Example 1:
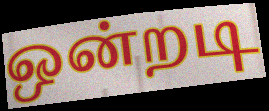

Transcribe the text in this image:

ஒன்றடி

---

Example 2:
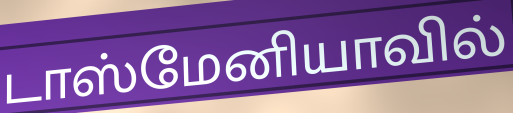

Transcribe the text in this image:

டாஸ்மேனியாவில்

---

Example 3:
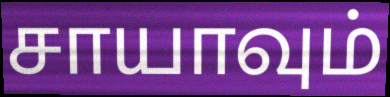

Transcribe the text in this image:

சாயாவும்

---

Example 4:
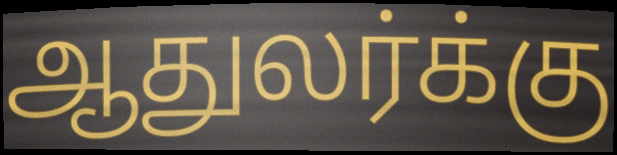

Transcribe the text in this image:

ஆதுலர்க்கு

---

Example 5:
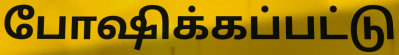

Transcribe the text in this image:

போஷிக்கப்பட்டு